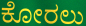
ಕೋರಲು